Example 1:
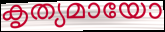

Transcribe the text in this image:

കൃത്യമായോ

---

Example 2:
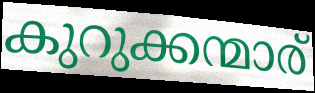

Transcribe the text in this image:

കുറുക്കന്മാര്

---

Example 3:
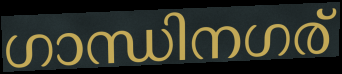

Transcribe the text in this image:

ഗാന്ധിനഗര്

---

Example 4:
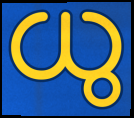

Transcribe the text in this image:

ധു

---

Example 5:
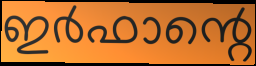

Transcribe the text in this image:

ഇർഫാന്റെ